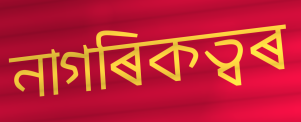
নাগৰিকত্বৰ